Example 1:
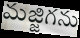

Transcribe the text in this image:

మజ్జిగను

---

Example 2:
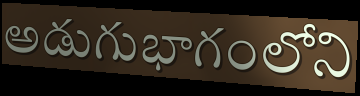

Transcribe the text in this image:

అడుగుభాగంలోని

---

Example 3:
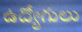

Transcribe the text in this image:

ఉద్యోగులు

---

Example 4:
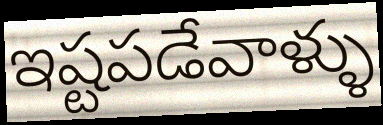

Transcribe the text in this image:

ఇష్టపడేవాళ్ళు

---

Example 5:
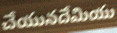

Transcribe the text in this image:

చేయునదేమియు